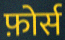
फ़ोर्स